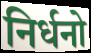
निर्धनो